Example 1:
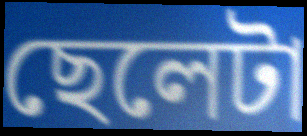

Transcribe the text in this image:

ছেলেটা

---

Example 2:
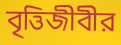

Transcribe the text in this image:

বৃত্তিজীবীর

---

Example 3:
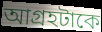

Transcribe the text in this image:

আগ্রহটাকে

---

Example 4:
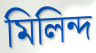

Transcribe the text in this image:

মিলিন্দ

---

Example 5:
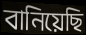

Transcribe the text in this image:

বানিয়েছি